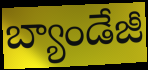
బ్యాండేజీ